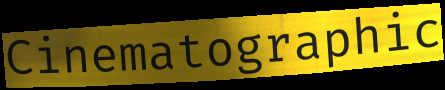
Cinematographic